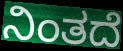
ನಿಂತದೆ